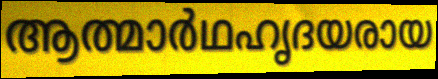
ആത്മാർഥഹൃദയരായ